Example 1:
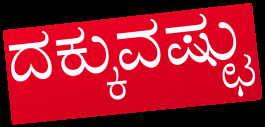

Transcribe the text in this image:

ದಕ್ಕುವಷ್ಟು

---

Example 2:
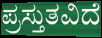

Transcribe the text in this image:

ಪ್ರಸ್ತುತವಿದೆ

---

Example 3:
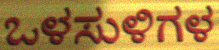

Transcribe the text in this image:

ಒಳಸುಳಿಗಳ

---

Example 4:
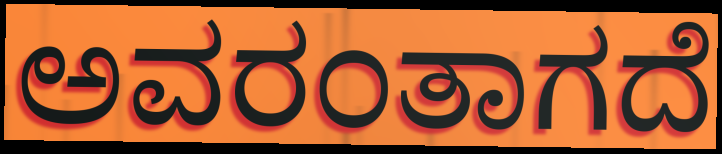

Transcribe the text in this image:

ಅವರಂತಾಗದೆ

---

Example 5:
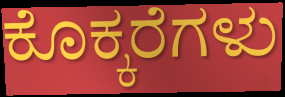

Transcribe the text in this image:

ಕೊಕ್ಕರೆಗಳು